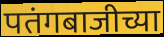
पतंगबाजीच्या